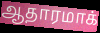
ஆதாரமாக்